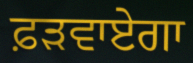
ਫ਼ੜਵਾਏਗਾ